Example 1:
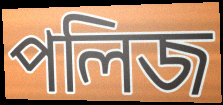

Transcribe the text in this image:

পলিজ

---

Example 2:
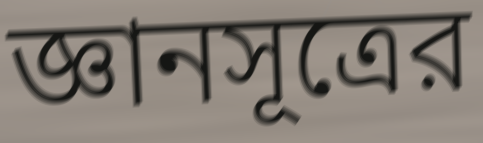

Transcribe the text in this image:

জ্ঞানসূত্রের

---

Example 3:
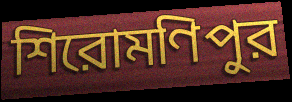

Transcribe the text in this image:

শিরোমণিপুর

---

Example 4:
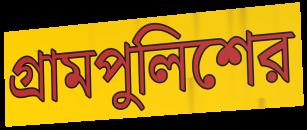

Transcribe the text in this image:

গ্রামপুলিশের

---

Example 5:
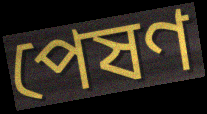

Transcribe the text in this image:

পেষণ